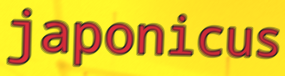
japonicus